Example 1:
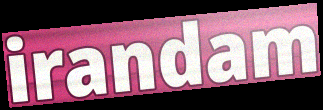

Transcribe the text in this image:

irandam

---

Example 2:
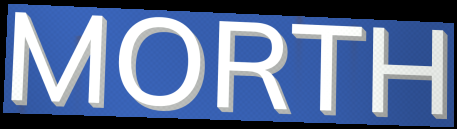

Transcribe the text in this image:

MORTH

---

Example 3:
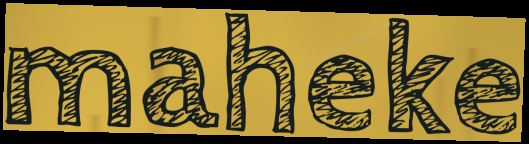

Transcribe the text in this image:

maheke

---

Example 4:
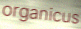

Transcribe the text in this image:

organicus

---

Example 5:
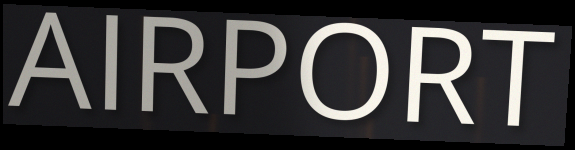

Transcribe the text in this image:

AIRPORT